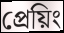
প্রেয়িং